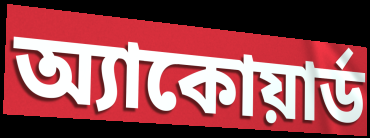
অ্যাকোয়ার্ড